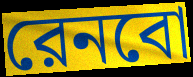
রেনবো